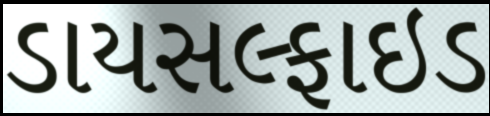
ડાયસલ્ફાઇડ